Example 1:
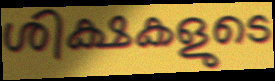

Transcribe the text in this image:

ശിക്ഷകളുടെ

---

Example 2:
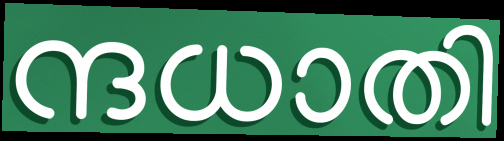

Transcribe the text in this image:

ന്ദധാതി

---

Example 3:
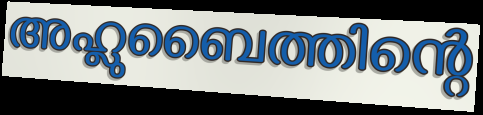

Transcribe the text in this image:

അഹ്ലുബൈത്തിന്റെ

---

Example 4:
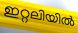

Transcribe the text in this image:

ഇറ്റലിയിൽ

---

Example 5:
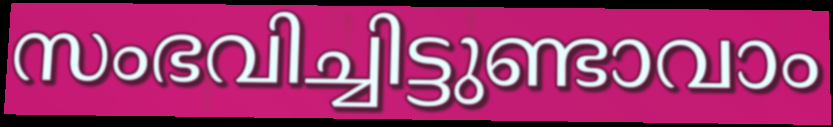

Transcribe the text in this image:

സംഭവിച്ചിട്ടുണ്ടാവാം